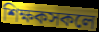
শিক্ষকসকলে